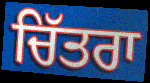
ਚਿੱਤਰਾ